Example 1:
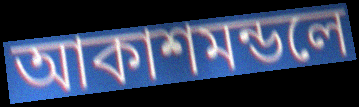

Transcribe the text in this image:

আকাশমন্ডলে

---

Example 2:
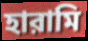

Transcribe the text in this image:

হারামি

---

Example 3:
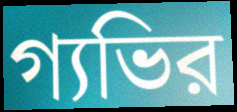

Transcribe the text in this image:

গ্যভির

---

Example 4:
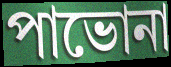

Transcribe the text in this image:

পাভোনা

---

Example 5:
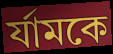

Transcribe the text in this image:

র্যামকে